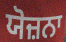
ਯੋਜ਼ਨਾ